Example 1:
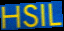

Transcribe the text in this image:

HSIL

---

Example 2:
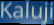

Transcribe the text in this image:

Kaluji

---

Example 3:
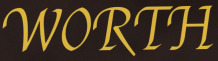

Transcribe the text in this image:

WORTH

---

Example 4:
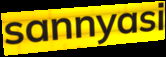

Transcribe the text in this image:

sannyasi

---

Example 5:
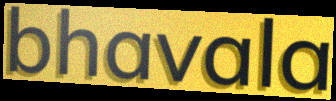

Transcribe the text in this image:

bhavala